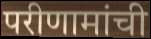
परीणामांची